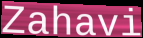
Zahavi